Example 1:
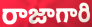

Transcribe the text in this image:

రాజాగారి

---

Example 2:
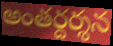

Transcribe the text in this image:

అంతర్దర్శన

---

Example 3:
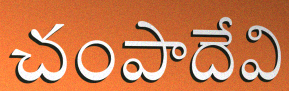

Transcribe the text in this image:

చంపాదేవి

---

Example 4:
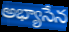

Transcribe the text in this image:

అభ్యాసేన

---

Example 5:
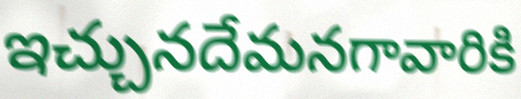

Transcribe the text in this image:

ఇచ్చునదేమనగావారికి